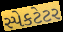
સ્પેકટેટર